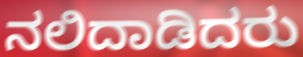
ನಲಿದಾಡಿದರು